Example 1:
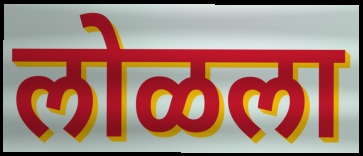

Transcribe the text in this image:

लोळला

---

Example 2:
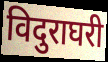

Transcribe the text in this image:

विदुराघरी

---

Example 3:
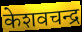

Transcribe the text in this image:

केशवचन्द्र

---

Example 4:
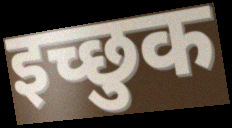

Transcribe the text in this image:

इच्छुक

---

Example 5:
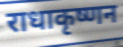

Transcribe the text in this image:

राधाकृष्णन